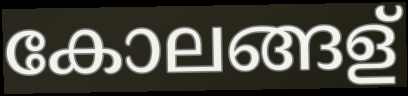
കോലങ്ങള്